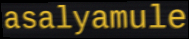
asalyamule